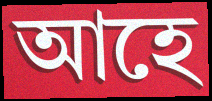
আহে